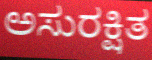
ಅಸುರಕ್ಷಿತ